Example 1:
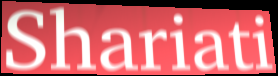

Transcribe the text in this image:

Shariati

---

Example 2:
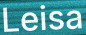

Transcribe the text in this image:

Leisa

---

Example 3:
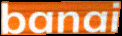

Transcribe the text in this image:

banai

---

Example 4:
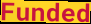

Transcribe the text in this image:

Funded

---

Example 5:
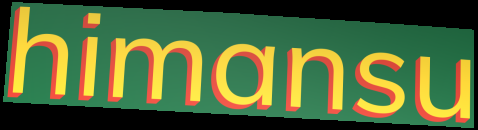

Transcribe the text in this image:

himansu